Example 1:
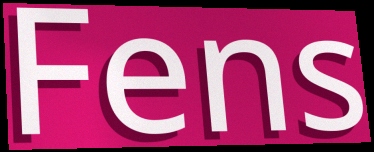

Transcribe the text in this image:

Fens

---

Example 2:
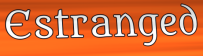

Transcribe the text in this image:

Estranged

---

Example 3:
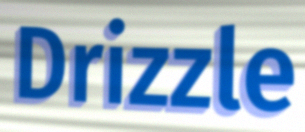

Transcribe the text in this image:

Drizzle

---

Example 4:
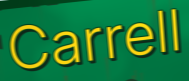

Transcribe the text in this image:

Carrell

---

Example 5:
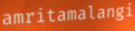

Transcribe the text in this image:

amritamalangi